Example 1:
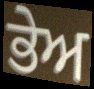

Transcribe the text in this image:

ਭੇਅ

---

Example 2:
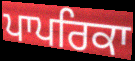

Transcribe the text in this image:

ਪਾਪਰਿਕਾ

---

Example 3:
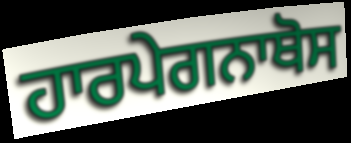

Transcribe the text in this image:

ਹਾਰਪੇਗਨਾਥੋਸ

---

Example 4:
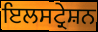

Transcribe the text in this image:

ਇਲਸਟ੍ਰੇਸ਼ਨ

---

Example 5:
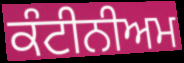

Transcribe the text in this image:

ਕੰਟੀਨੀਅਮ